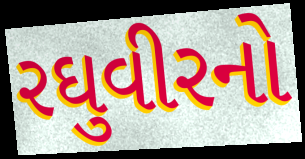
રઘુવીરનો